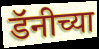
डॅनीच्या